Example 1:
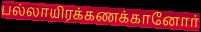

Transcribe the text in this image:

பல்லாயிரக்கணக்கானோர்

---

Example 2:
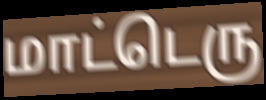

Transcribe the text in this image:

மாட்டெரு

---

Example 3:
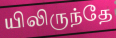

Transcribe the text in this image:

யிலிருந்தே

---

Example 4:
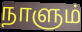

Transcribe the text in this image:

நாளும்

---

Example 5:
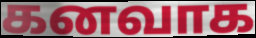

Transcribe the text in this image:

கனவாக